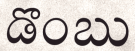
డొంబు